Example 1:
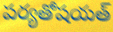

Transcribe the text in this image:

పర్యతోషయత్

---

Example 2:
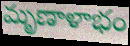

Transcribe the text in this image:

మృణాళాభం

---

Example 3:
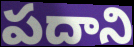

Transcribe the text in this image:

పదాని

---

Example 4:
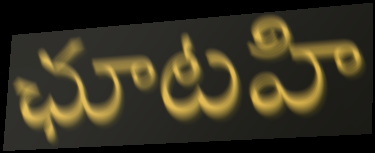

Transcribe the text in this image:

ఛూటహి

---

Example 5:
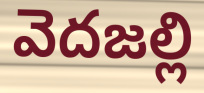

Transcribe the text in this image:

వెదజల్లి